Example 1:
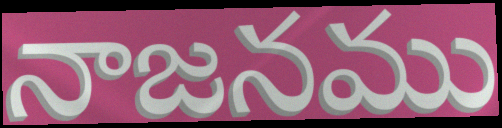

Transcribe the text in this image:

నాజనము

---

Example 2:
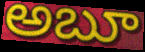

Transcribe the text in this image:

అబూ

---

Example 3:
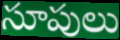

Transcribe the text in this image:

సూపులు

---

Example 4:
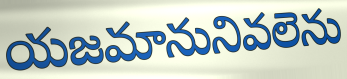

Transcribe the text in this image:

యజమానునివలెను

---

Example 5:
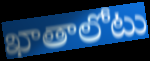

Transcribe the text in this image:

ఖాతాలోటు